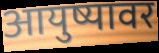
आयुष्यावर